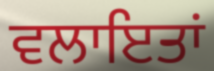
ਵਲਾਇਤਾਂ